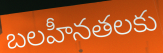
బలహీనతలకు